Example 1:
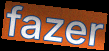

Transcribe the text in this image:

fazer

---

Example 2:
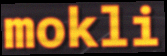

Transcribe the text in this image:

mokli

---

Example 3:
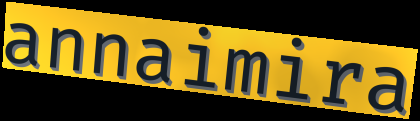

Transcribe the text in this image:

annaimira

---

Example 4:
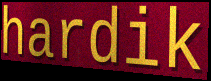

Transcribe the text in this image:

hardik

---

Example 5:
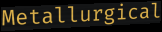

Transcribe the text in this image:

Metallurgical